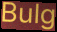
Bulg